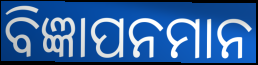
ବିଜ୍ଞାପନମାନ